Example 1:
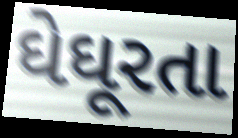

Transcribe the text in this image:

ઘેઘૂરતા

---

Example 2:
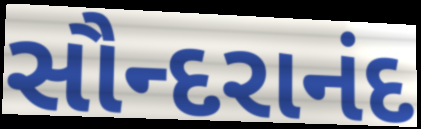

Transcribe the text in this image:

સૌન્દરાનંદ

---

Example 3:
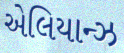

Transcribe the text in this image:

એલિયાન્ઝ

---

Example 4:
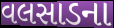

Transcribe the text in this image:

વલસાડના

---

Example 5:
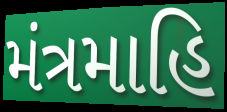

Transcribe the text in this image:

મંત્રમાહિ